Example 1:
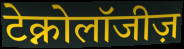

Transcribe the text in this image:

टेक्नोलॉजीज़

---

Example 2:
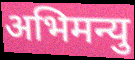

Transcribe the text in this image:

अभिमन्यु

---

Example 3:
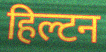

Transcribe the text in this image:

हिल्टन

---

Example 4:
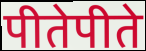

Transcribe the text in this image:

पीतेपीते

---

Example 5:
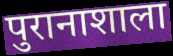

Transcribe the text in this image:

पुरानाशाला